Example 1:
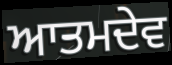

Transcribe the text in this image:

ਆਤਮਦੇਵ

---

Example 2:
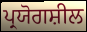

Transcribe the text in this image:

ਪ੍ਰਯੋਗਸ਼ੀਲ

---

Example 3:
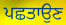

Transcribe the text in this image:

ਪਛਤਾਉਣ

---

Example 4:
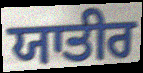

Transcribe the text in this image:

ਯਾਤੀਰ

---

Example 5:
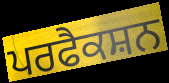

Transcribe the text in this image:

ਪਰਫੈਕਸ਼ਨ